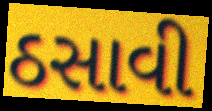
ઠસાવી